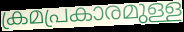
ക്രമപ്രകാരമുള്ള